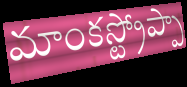
మాంకస్ట్రోప్పా